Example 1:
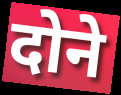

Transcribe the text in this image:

दोने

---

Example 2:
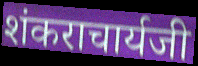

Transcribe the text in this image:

शंकराचार्यजी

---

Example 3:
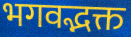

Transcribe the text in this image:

भगवद्भक्त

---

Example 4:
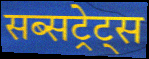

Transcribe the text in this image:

सब्सट्रेट्स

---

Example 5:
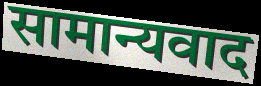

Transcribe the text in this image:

सामान्यवाद